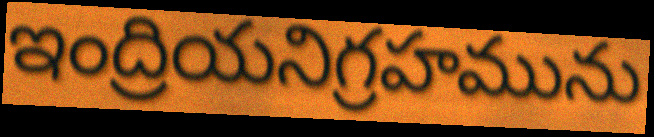
ఇంద్రియనిగ్రహమును